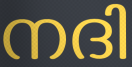
നദി